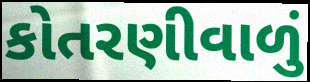
કોતરણીવાળું